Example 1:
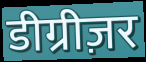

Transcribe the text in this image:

डीग्रीज़र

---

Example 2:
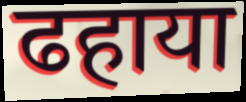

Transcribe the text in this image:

ढहाया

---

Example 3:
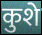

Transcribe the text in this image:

कुशे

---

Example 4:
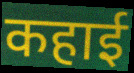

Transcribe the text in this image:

कहाई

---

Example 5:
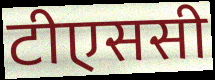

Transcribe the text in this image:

टीएससी